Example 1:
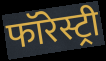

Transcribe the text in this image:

फॉरेस्ट्री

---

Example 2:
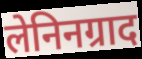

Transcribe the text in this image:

लेनिनग्राद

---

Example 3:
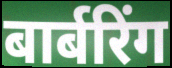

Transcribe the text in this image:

बार्बरिंग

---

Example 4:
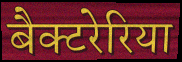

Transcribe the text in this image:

बैक्टरेरिया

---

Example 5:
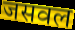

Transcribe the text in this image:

जसवल